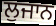
ਲੁਜਾਨ